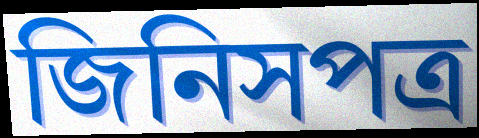
জিনিসপত্র